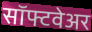
सॉफ्टवेअर